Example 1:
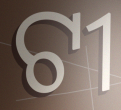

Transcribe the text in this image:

ଟୀ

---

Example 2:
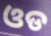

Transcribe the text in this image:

ଓଡ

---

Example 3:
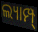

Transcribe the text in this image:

ଲ୍ୟାମ୍ପ୍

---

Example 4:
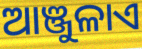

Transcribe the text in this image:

ଆଞ୍ଜୁଳାଏ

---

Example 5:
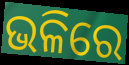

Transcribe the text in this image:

ଭଳିରେ